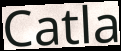
Catla